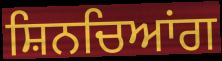
ਸ਼ਿਨਚਿਆਂਗ